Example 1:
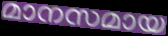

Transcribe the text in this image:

മാനസമായ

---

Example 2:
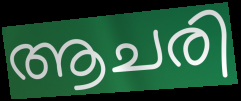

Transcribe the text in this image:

ആചരി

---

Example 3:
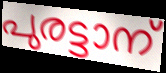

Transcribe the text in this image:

പുരട്ടാന്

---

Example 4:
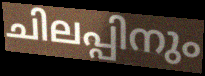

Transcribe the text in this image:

ചിലപ്പിനും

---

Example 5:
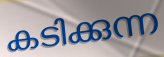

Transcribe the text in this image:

കടിക്കുന്ന